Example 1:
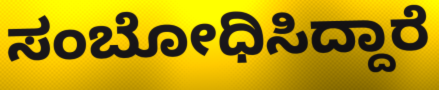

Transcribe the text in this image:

ಸಂಬೋಧಿಸಿದ್ದಾರೆ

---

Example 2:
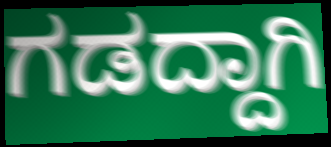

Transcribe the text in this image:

ಗಡದ್ದಾಗಿ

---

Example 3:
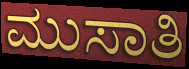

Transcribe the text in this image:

ಮುಸಾತಿ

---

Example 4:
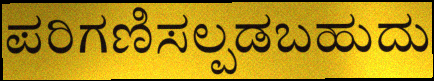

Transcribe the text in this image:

ಪರಿಗಣಿಸಲ್ಪಡಬಹುದು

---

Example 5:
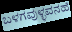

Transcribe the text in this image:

ಬಳಗವುಳ್ಳವನಹೆ